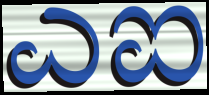
ಎಐ